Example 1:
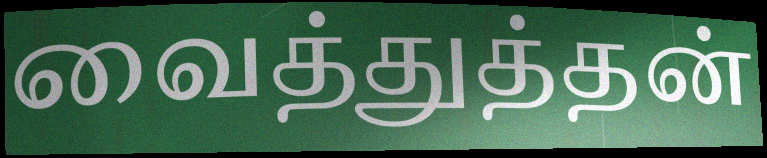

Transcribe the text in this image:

வைத்துத்தன்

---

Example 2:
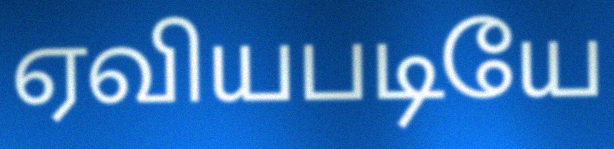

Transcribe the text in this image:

ஏவியபடியே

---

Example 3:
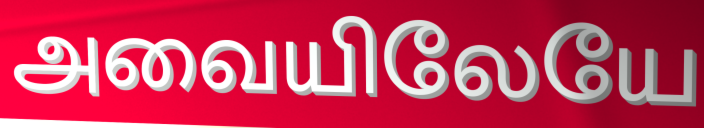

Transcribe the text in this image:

அவையிலேயே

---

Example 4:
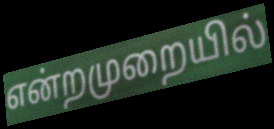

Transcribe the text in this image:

என்றமுறையில்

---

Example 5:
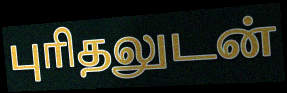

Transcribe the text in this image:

புரிதலுடன்